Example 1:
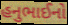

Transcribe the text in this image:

હનુભાઈનો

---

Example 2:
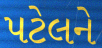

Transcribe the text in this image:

પટેલને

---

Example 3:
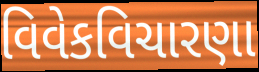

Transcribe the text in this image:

વિવેકવિચારણા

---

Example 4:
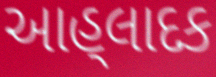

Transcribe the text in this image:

આહ્‌લાદક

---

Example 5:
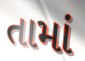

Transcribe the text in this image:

તામાં